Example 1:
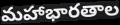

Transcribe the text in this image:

మహాభారతాల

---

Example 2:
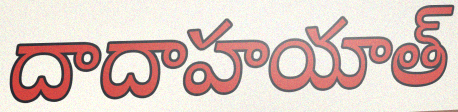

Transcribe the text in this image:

దాదాహయాత్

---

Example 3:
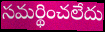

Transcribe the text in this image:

సమర్థించలేదు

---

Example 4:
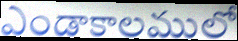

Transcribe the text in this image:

ఎండాకాలములో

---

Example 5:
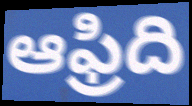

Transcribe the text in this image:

ఆఫ్రిది